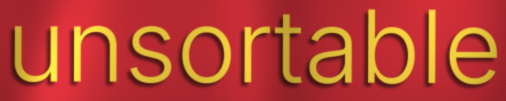
unsortable